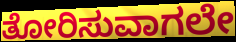
ತೋರಿಸುವಾಗಲೇ